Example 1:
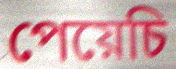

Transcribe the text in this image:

পেয়েচি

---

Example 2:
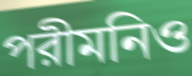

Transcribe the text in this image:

পরীমনিও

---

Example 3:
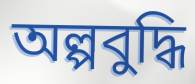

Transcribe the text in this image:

অল্পবুদ্ধি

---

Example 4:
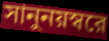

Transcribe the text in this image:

সানুনয়স্বরে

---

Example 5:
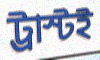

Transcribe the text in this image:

ট্রাস্টই